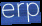
erp